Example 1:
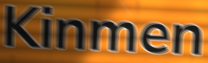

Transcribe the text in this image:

Kinmen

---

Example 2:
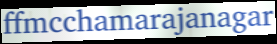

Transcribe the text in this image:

ffmcchamarajanagar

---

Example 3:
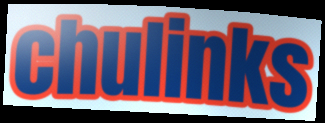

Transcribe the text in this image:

chulinks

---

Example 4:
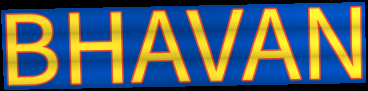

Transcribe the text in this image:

BHAVAN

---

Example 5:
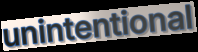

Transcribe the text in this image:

unintentional